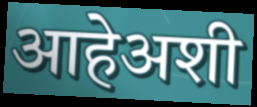
आहेअशी